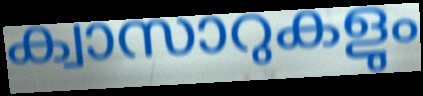
ക്വാസാറുകളും